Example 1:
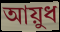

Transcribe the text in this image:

আয়ুধ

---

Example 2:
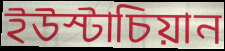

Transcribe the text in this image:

ইউস্টাচিয়ান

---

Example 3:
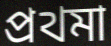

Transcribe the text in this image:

প্রথমা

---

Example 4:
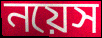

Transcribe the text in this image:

নয়েস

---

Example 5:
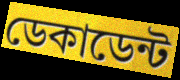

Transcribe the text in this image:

ডেকাডেন্ট